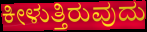
ಕೀಳುತ್ತಿರುವುದು